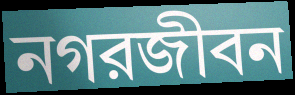
নগরজীবন